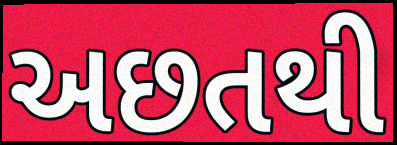
અછતથી